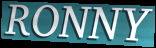
RONNY